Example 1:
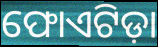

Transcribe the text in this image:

ଫୋଏଟିଡ଼ା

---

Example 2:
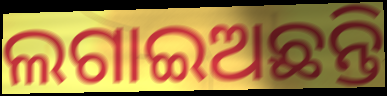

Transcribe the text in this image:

ଲଗାଇଅଛନ୍ତି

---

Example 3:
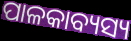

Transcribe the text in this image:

ପାଳକାବ୍ୟସ୍ୟ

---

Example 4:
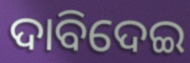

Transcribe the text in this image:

ଦାବିଦେଇ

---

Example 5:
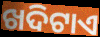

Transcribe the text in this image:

ଖଦିଟାଏ